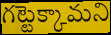
గట్టెక్కామని